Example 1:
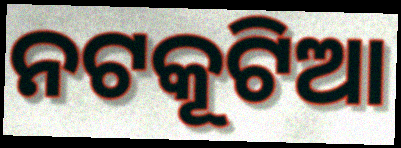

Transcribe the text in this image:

ନଟକୂଟିଆ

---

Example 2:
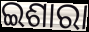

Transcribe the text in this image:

ଇଶାରା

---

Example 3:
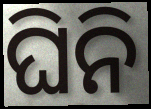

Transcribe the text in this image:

ଘିନି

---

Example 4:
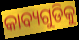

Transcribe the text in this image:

କାବ୍ୟଗୁଡିକୁ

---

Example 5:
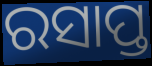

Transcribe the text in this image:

ରସାପ୍ତ